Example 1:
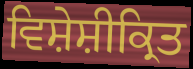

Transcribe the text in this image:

ਵਿਸ਼ੇਸ਼ੀਕ੍ਰਿਤ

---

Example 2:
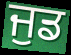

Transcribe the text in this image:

ਜੁਡ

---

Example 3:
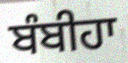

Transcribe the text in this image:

ਬੰਬੀਹਾ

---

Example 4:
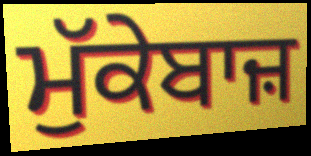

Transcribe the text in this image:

ਮੁੱਕੇਬਾਜ਼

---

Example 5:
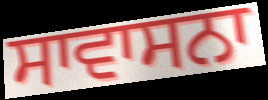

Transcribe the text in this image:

ਸਾਵਾਸਨਾ